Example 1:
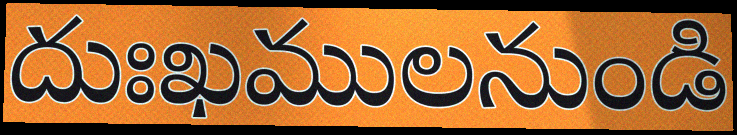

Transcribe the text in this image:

దుఃఖములనుండి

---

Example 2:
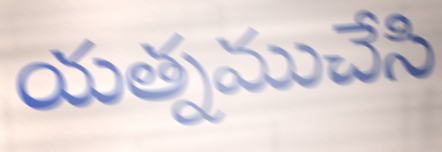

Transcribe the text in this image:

యత్నముచేసి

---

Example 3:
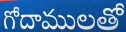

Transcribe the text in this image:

గోదాములతో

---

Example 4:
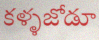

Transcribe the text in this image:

కళ్ళజోడూ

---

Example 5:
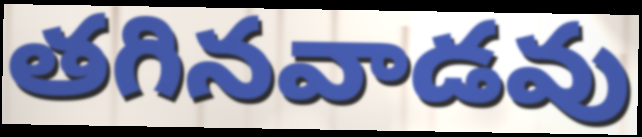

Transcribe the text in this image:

తగినవాడవు